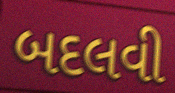
બદલવી